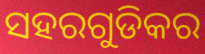
ସହରଗୁଡିକର